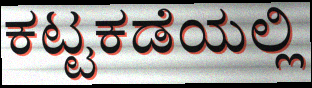
ಕಟ್ಟಕಡೆಯಲ್ಲಿ